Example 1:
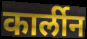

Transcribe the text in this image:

कार्लीन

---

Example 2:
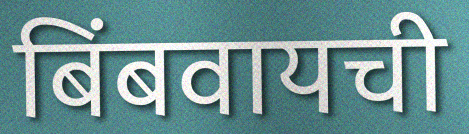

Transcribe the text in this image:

बिंबवायची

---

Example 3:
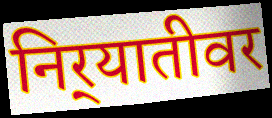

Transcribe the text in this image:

निर्यातीवर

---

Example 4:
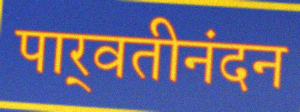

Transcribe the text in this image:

पार्वतीनंदन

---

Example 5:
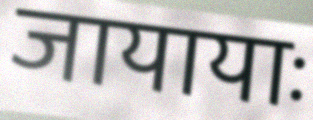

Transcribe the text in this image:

जायायाः